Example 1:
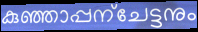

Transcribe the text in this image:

കുഞ്ഞാപ്പന്ചേട്ടനും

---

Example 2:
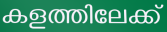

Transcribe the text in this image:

കളത്തിലേക്ക്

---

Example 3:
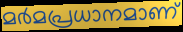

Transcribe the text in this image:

മർമപ്രധാനമാണ്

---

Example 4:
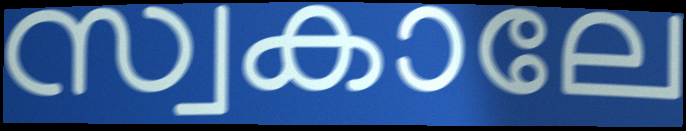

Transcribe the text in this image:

സ്വകാലേ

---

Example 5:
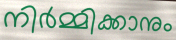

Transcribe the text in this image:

നിർമ്മിക്കാനും